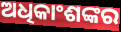
ଅଧିକାଂଶଙ୍କର